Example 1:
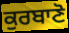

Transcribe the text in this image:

ਕੁਰਬਾਣੋ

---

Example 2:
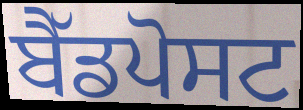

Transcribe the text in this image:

ਬੈੱਡਪੋਸਟ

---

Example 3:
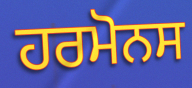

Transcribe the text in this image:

ਹਰਮੋਨਸ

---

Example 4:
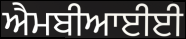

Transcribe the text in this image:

ਐਮਬੀਆਈਈ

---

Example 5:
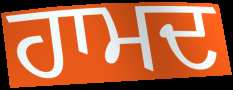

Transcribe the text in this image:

ਹਾਮਦ